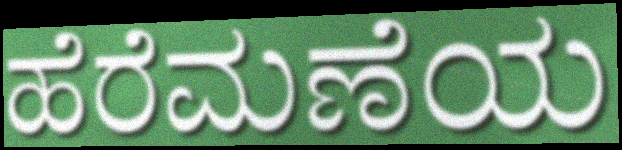
ಹೆರೆಮಣೆಯ